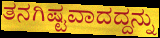
ತನಗಿಷ್ಟವಾದದ್ದನ್ನು